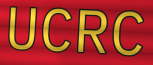
UCRC